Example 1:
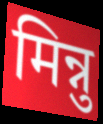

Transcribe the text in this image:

मिन्नु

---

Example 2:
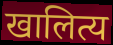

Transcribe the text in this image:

खालित्य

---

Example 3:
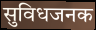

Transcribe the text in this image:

सुविधजनक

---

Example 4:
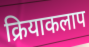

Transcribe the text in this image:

क्रियाकलाप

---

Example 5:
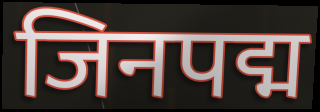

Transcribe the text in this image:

जिनपद्म